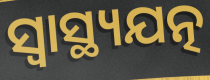
ସ୍ୱାସ୍ଥ୍ୟଯତ୍ନ